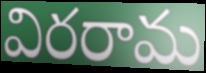
విరరామ